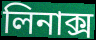
লিনাক্স